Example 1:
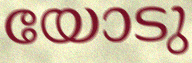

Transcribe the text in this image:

യോടു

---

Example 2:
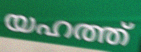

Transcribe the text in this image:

യഹത്ത്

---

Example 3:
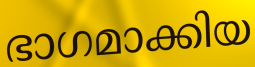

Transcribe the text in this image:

ഭാഗമാക്കിയ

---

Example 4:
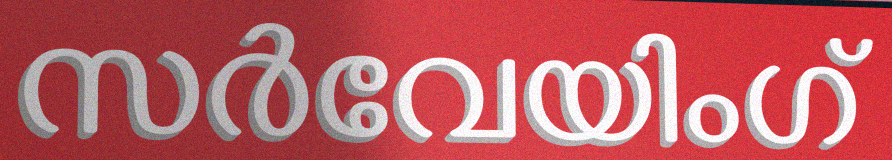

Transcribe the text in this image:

സർവേയിംഗ്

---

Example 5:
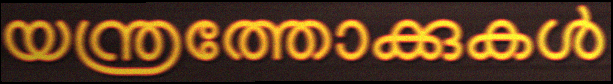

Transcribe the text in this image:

യന്ത്രത്തോക്കുകൾ